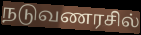
நடுவணரசில்